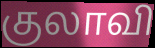
குலாவி